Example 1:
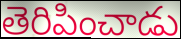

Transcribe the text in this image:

తెరిపించాడు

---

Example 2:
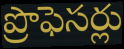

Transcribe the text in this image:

ప్రొఫెసర్లు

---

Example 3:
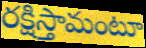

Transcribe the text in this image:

రక్షిస్తామంటూ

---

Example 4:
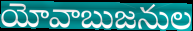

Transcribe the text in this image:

యోవాబుజనుల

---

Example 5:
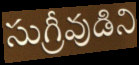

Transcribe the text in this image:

సుగ్రీవుడిని